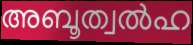
അബൂത്വൽഹ